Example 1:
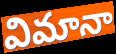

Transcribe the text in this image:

విమానా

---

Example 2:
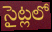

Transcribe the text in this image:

సైట్లలో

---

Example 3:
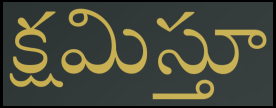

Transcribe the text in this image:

క్షమిస్తూ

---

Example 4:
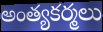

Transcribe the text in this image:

అంత్యకర్మలు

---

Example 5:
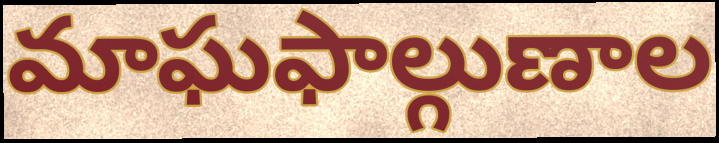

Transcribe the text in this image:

మాఘఫాల్గుణాల